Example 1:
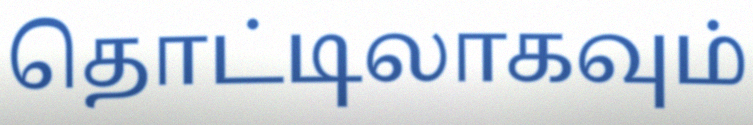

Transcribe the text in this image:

தொட்டிலாகவும்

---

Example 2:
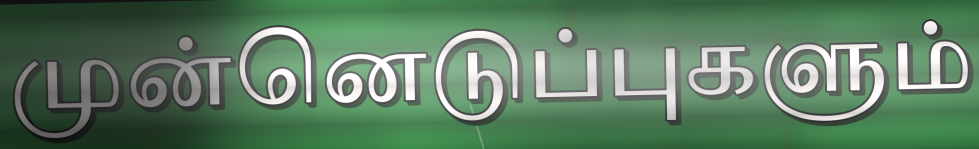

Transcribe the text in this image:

முன்னெடுப்புகளும்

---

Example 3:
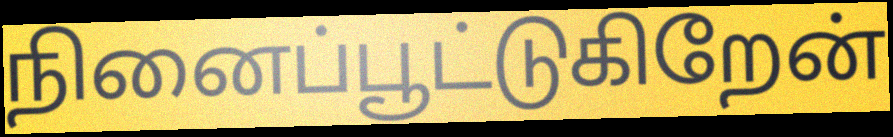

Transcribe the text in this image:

நினைப்பூட்டுகிறேன்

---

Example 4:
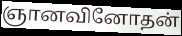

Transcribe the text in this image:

ஞானவினோதன்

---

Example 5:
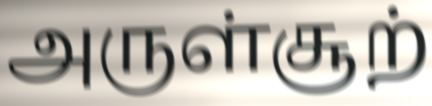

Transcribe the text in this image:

அருள்சூற்